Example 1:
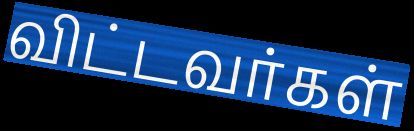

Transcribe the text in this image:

விட்டவர்கள்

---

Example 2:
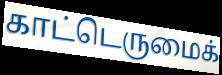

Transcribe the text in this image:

காட்டெருமைக்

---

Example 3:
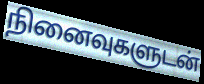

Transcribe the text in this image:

நினைவுகளுடன்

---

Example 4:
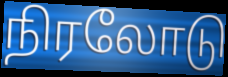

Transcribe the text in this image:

நிரலோடு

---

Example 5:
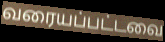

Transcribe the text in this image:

வரையப்பட்டவை